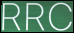
RRC